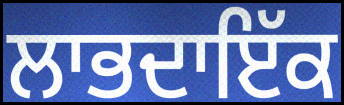
ਲਾਭਦਾਇੱਕ